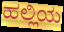
ಹಲ್ಲಿಯ